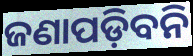
ଜଣାପଡ଼ିବନି